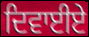
ਦਿਵਾਈਏ